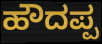
ಹೌದಪ್ಪ